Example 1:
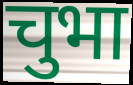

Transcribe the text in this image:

चुभा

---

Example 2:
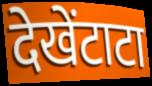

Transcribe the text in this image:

देखेंटाटा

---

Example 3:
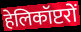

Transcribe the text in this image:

हेलिकॉप्टरों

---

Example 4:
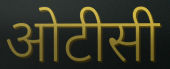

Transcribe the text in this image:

ओटीसी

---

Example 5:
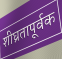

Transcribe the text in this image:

शीघ्रतापूर्वक